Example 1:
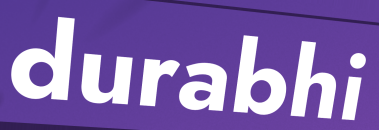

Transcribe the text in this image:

durabhi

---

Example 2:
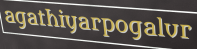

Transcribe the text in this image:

agathiyarpogalur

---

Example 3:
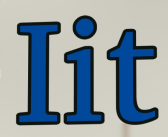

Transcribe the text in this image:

Iit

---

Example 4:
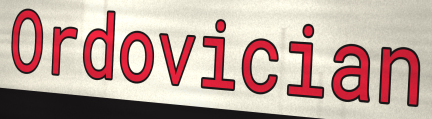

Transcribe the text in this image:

Ordovician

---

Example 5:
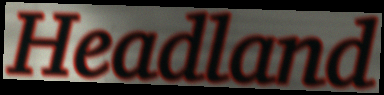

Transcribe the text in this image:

Headland